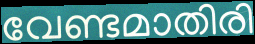
വേണ്ടമാതിരി